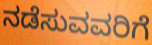
ನಡೆಸುವವರಿಗೆ